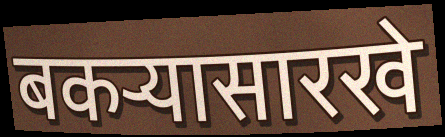
बकऱ्यासारखे